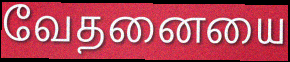
வேதனையை